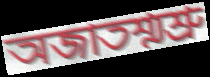
অজাতশ্মশ্রু